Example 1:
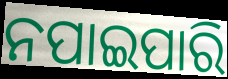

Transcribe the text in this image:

ନପାଇପାରି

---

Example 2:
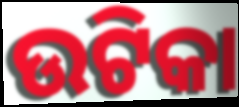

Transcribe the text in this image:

ଉଟିକା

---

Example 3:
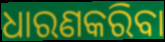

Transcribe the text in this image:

ଧାରଣକରିବା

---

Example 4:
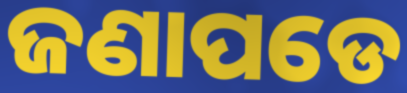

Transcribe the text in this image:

ଜଣାପଡେ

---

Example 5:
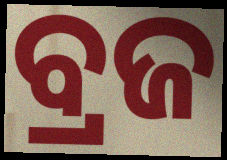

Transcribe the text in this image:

ବ୍ରଜ